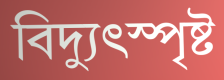
বিদ্যুৎস্পৃষ্ট